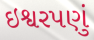
ઇશ્વરપણું